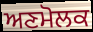
ਅਣਮੋਲਕ